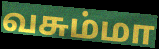
வசும்மா